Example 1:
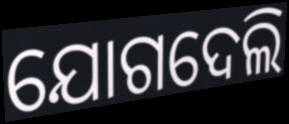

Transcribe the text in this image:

ଯୋଗଦେଲି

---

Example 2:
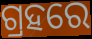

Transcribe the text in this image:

ଗ୍ରହରେ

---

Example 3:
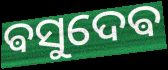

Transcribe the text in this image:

ଵସୁଦେଵ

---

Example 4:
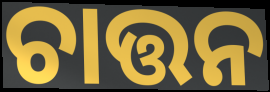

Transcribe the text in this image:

ଚାତ୍ତନ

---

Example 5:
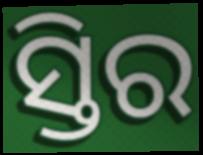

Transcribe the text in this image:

ସ୍ତିର